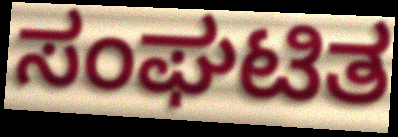
ಸಂಘಟಿತ